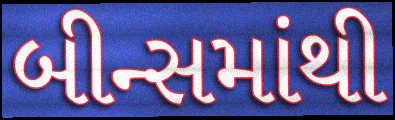
બીન્સમાંથી